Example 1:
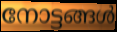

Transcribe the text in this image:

നോട്ടങ്ങൾ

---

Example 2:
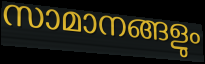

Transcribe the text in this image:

സാമാനങ്ങളും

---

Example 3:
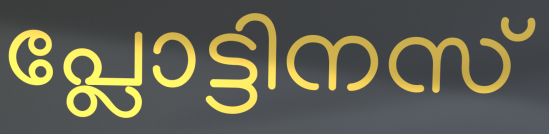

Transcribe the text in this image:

പ്ലോട്ടിനസ്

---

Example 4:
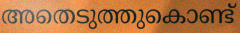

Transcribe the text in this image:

അതെടുത്തുകൊണ്ട്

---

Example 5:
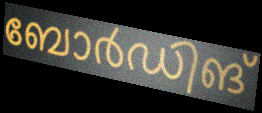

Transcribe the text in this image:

ബോർഡിങ്